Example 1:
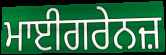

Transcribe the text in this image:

ਮਾਈਗਰੇਨਜ਼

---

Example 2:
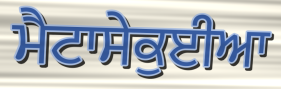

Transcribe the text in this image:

ਮੈਟਾਸੇਕੁਈਆ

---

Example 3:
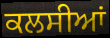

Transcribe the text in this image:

ਕਲਸੀਆਂ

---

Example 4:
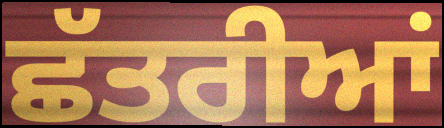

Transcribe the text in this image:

ਛੱਤਰੀਆਂ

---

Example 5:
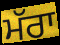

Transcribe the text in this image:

ਮੱਰਾ